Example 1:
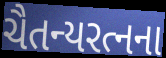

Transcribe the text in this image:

ચૈતન્યરત્નના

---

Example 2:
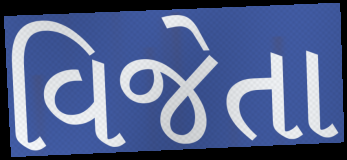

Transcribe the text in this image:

વિજેતા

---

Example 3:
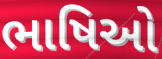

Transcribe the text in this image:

ભાષિઓ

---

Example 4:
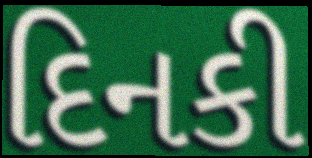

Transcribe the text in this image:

દિનકી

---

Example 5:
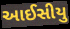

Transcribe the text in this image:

આઈસીયુ